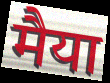
मैया